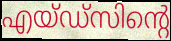
എയ്ഡ്സിന്റെ